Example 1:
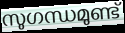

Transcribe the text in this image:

സുഗന്ധമുണ്ട്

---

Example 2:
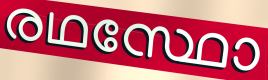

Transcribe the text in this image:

രഥസ്ഥോ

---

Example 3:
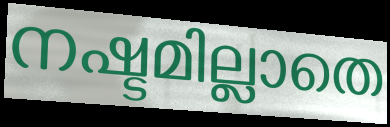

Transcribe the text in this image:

നഷ്ടമില്ലാതെ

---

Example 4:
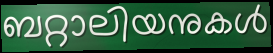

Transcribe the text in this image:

ബറ്റാലിയനുകൾ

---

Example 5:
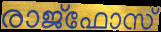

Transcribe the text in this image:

രാജ്ഫോസ്